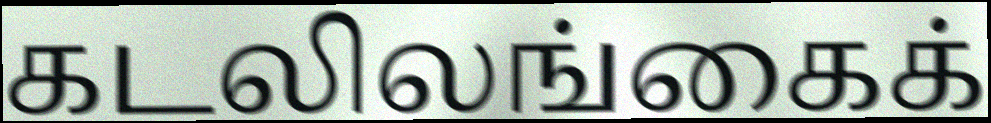
கடலிலங்கைக்